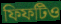
ফিফটিও